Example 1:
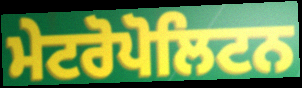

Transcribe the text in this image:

ਮੇਟਰੋਪੋਲਿਟਨ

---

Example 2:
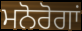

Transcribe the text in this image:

ਮਨੋਰੋਗਾਂ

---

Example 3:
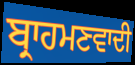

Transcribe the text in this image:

ਬ੍ਰਾਹਮਣਵਾਦੀ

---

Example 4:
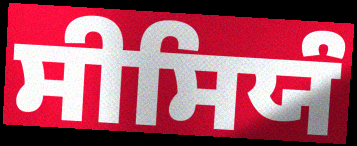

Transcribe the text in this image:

ਸੀਸਿਯੰ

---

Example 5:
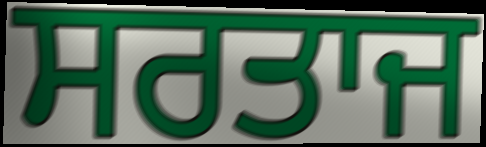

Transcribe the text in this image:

ਸਰਤਾਜ